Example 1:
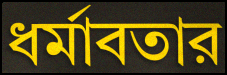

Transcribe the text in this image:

ধর্মাবতার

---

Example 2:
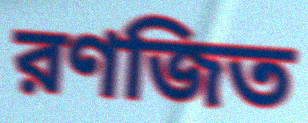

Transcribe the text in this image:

রণজিত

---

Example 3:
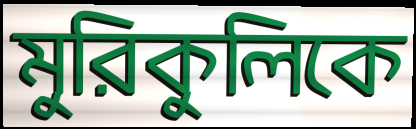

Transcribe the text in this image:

মুরিকুলিকে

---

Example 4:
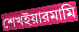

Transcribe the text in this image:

শেখইয়ারমামি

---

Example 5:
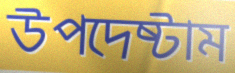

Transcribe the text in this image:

উপদেষ্টাম